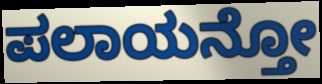
ಪಲಾಯನ್ತೋ